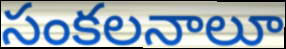
సంకలనాలూ